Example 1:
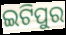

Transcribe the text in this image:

ଇଟିପୁର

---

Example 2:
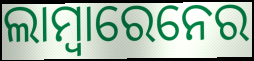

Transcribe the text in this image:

ଲାମ୍ବାରେନେର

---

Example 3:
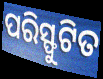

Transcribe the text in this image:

ପରିସ୍ଫୁଟିତ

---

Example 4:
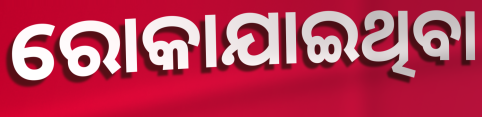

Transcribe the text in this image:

ରୋକାଯାଇଥିବା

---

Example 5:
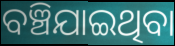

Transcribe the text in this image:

ବଞ୍ଚିଯାଇଥିବା